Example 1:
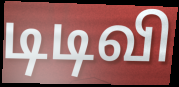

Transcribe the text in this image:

டிடிவி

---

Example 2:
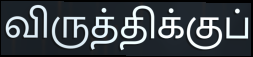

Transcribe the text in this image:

விருத்திக்குப்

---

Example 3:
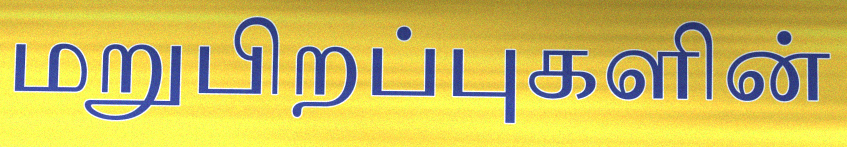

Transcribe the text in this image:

மறுபிறப்புகளின்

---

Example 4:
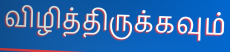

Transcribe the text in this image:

விழித்திருக்கவும்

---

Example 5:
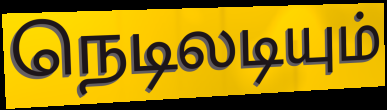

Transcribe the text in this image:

நெடிலடியும்